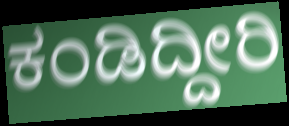
ಕಂಡಿದ್ದೀರಿ